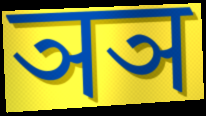
ञञ